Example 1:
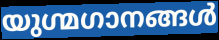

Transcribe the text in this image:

യുഗ്മഗാനങ്ങൾ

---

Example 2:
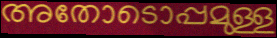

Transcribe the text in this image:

അതോടൊപ്പമുള്ള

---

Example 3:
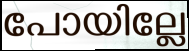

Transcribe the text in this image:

പോയില്ലേ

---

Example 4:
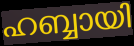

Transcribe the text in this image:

ഹബ്ബായി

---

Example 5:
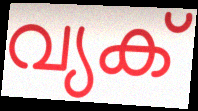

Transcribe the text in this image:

വ്യക്